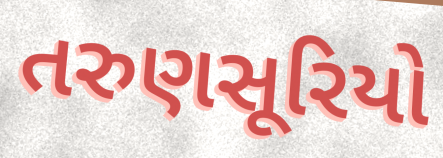
તરુણસૂરિયો